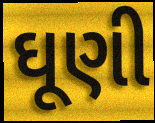
ઘૂણી